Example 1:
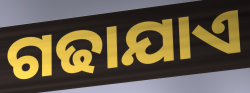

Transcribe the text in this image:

ଗଢାଯାଏ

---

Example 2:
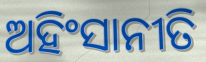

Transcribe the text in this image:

ଅହିଂସାନୀତି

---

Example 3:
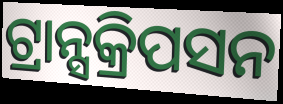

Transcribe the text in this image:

ଟ୍ରାନ୍ସକ୍ରିପସନ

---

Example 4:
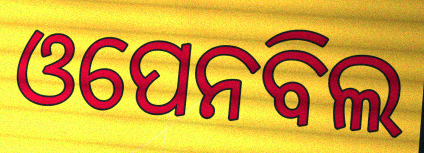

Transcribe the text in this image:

ଓପେନବିଲ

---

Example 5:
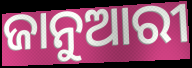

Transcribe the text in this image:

ଜାନୁଆରୀ